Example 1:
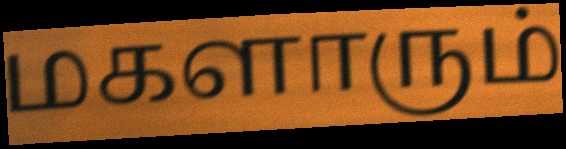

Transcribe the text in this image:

மகளாரும்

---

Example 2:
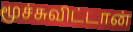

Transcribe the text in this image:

மூச்சுவிட்டான்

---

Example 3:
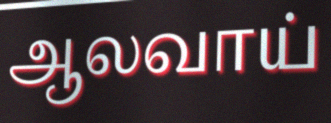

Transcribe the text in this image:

ஆலவாய்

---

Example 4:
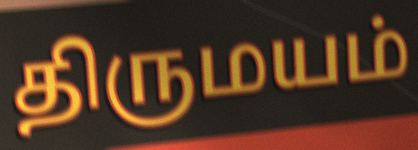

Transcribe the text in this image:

திருமயம்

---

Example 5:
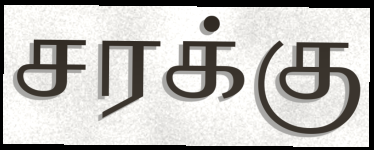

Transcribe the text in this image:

சரக்கு